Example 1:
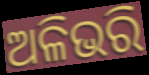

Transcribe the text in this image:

ଅଳିଭରି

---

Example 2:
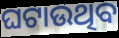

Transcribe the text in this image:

ଘଟାଉଥିବ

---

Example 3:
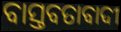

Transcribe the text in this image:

ବାସ୍ତବତାବାଦୀ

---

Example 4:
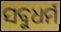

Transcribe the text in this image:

ସବୁଧର୍ମ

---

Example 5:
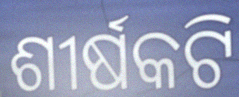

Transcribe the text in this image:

ଶୀର୍ଷକଟି